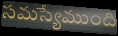
సమస్యేముంది